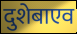
दुशेबाएव